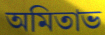
অমিতাভ